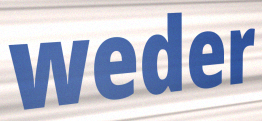
weder